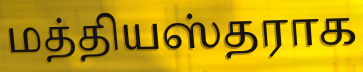
மத்தியஸ்தராக